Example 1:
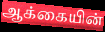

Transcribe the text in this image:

ஆக்கையின்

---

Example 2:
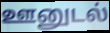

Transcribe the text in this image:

ஊனுடல்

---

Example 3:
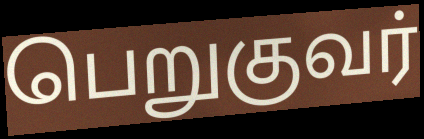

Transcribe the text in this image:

பெறுகுவர்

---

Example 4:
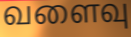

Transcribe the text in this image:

வளைவு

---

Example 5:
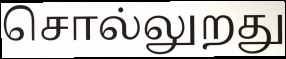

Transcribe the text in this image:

சொல்லுறது